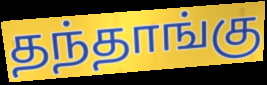
தந்தாங்கு